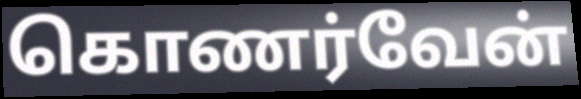
கொணர்வேன்